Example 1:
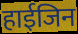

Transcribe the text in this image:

हाईजिन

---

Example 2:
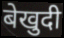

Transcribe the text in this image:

बेखुदी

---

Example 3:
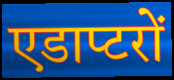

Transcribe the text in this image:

एडाप्टरों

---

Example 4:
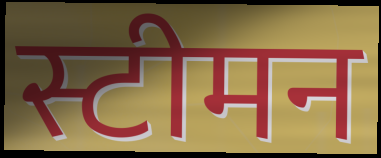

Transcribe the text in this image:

स्टीमन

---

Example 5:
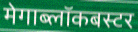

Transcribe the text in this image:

मेगाब्लॉकबस्टर